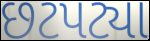
છટપટ્યા